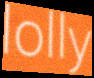
lolly